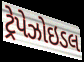
ટ્રેપેઝોઇડલ